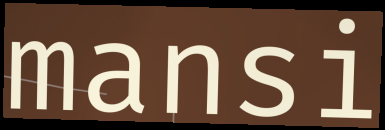
mansi